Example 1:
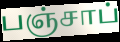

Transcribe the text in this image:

பஞ்சாப்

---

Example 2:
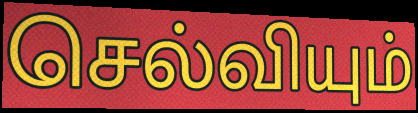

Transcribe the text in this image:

செல்வியும்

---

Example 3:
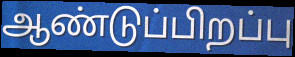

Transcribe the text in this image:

ஆண்டுப்பிறப்பு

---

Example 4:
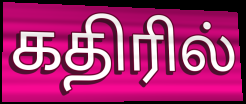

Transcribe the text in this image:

கதிரில்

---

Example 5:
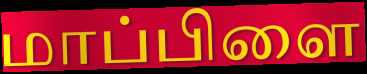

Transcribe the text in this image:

மாப்பிளை